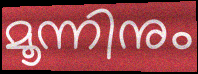
മൂന്നിനും